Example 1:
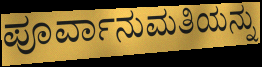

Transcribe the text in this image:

ಪೂರ್ವಾನುಮತಿಯನ್ನು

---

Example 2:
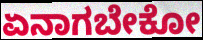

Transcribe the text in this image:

ಏನಾಗಬೇಕೋ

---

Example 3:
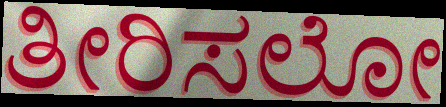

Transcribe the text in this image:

ತೀರಿಸಲೋ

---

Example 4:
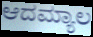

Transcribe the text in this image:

ಆದಮ್ಯಾಲ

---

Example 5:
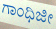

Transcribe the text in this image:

ಗಾಂಧಿಜೀ